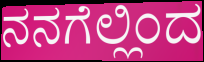
ನನಗೆಲ್ಲಿಂದ